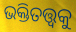
ଭକ୍ତିତତ୍ତ୍ୱକୁ